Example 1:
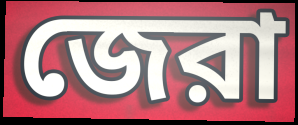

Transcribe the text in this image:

জেরা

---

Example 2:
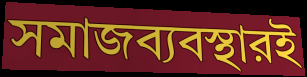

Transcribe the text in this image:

সমাজব্যবস্থারই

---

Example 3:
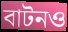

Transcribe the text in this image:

বাটনও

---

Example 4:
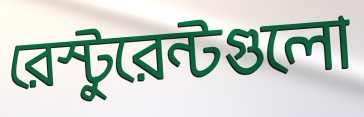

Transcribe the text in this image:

রেস্টুরেন্টগুলো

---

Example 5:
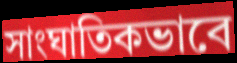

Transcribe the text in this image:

সাংঘাতিকভাবে